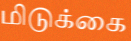
மிடுக்கை